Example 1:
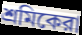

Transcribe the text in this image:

শ্রমিকেরা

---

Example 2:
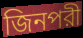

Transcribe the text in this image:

জিনপরী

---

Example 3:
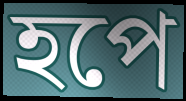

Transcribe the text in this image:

হপে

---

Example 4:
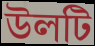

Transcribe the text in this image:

উলটি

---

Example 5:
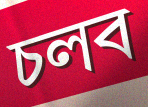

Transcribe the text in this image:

চলব